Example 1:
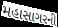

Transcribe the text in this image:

મહાસાગરની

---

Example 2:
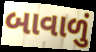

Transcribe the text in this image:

બાવાળું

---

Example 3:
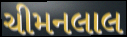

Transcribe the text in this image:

ચીમનલાલ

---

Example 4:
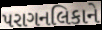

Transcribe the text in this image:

પરાગનલિકાને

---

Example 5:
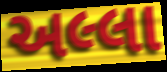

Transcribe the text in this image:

અલ્લા